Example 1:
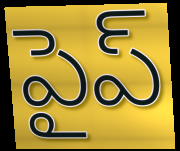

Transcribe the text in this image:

పైప్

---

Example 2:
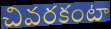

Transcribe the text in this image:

చివరకంటా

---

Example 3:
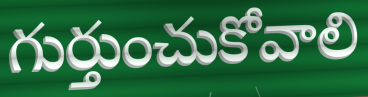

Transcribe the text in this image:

గుర్తుంచుకోవాలి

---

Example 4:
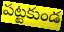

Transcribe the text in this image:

పట్టకుండ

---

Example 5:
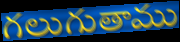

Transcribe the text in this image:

గలుగుతాము